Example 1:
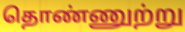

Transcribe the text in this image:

தொண்ணுற்று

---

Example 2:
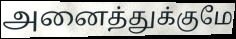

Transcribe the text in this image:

அனைத்துக்குமே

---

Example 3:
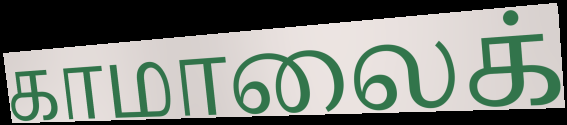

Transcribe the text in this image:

காமாலைக்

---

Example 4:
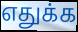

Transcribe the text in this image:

எதுக்க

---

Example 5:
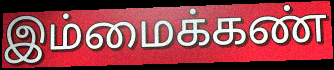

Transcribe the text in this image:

இம்மைக்கண்